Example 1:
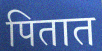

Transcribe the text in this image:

पितात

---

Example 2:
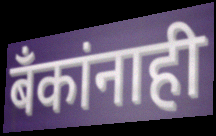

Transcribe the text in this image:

बँकांनाही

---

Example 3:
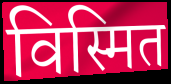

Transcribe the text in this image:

विस्मित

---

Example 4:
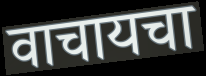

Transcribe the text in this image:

वाचायचा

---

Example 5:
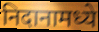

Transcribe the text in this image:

निदानामध्ये